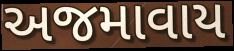
અજમાવાય